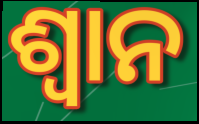
ଶ୍ଵାନ